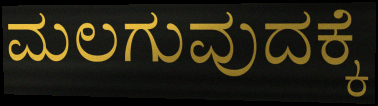
ಮಲಗುವುದಕ್ಕೆ